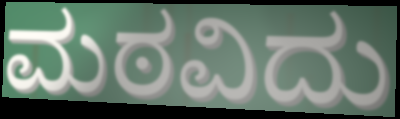
ಮಠವಿದು